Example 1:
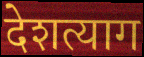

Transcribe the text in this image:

देशत्याग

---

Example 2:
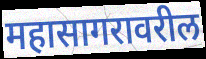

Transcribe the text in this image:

महासागरावरील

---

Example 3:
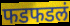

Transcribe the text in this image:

फडफडलं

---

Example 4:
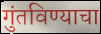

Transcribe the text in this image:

गुंतविण्याचा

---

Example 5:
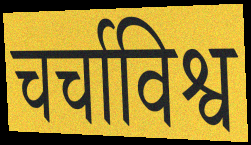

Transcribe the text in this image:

चर्चाविश्व